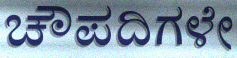
ಚೌಪದಿಗಳೇ